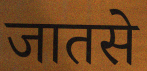
जातसे